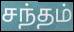
சந்தம்